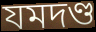
যমদণ্ড